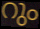
റും